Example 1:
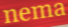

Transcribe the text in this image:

nema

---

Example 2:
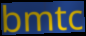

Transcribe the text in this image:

bmtc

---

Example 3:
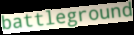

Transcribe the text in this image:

battleground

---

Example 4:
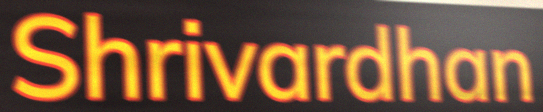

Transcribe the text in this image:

Shrivardhan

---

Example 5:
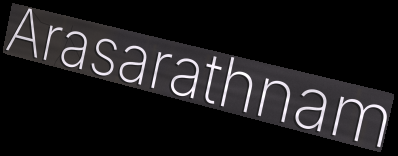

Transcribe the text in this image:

Arasarathnam